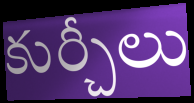
కుర్చీలు